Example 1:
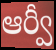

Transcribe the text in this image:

ఆర్వీ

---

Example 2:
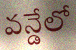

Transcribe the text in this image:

వన్డేలో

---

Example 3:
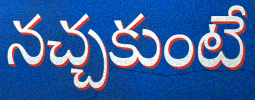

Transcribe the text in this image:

నచ్చకుంటే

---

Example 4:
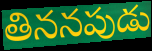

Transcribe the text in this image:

తిననపుడు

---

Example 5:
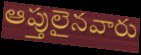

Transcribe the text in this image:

ఆప్తులైనవారు